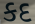
કદ